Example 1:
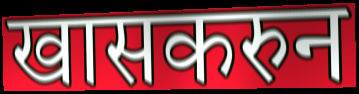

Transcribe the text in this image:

खासकरुन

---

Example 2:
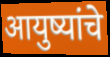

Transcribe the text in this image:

आयुष्यांचे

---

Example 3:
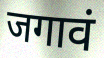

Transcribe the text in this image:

जगावं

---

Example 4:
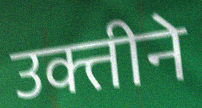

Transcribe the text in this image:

उक्तीने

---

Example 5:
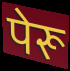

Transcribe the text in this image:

पेरू